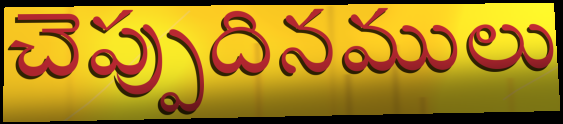
చెప్పుదినములు